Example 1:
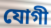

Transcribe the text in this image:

যোগী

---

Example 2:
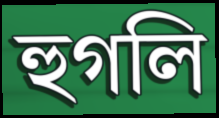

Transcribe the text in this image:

হুগলি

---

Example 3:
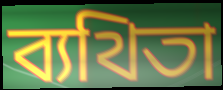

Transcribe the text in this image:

ব্যথিতা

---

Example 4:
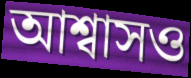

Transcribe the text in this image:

আশ্বাসও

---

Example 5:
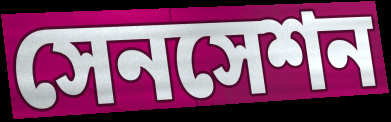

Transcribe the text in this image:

সেনসেশন